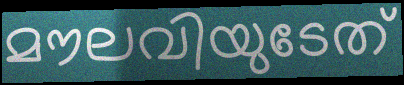
മൗലവിയുടേത്